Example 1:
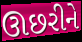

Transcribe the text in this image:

ઊછરીને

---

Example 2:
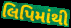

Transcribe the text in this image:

લિપિમાંથી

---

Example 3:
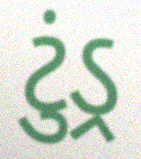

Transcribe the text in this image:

ટુંડ્ર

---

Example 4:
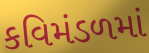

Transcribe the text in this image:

કવિમંડળમાં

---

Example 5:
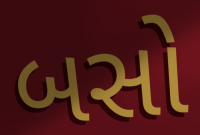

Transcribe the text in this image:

બસો